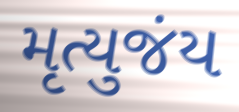
મૃત્યુજંય